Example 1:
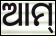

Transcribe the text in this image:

ଆମ୍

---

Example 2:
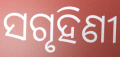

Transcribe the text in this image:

ସଗୃହିଣୀ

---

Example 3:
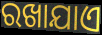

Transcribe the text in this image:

ରଖାଯାଏ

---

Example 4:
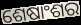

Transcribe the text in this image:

ଶେଷାଂଶର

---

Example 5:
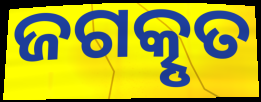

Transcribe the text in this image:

ଜଗତ୍କୃତ